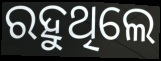
ରହୁଥିଲେ